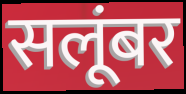
सलूंबर